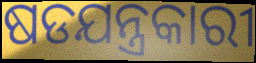
ଷଡଯନ୍ତ୍ରକାରୀ